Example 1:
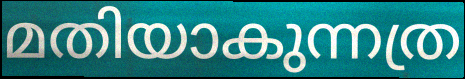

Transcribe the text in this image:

മതിയാകുന്നത്ര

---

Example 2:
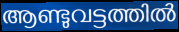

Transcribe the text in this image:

ആണ്ടുവട്ടത്തിൽ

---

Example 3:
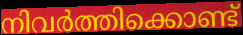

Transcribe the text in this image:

നിവർത്തിക്കൊണ്ട്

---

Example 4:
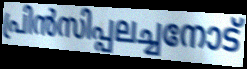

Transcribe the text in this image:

പ്രിൻസിപ്പലച്ചനോട്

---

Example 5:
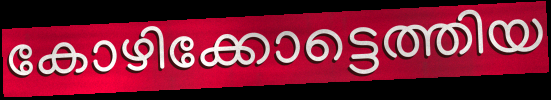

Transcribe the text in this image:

കോഴിക്കോട്ടെത്തിയ